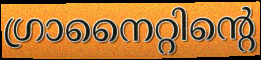
ഗ്രാനൈറ്റിന്റെ